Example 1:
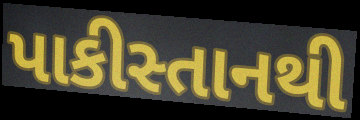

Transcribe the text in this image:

પાકીસ્તાનથી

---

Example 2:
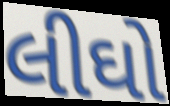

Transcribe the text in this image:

લીઘો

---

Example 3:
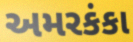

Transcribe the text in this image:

અમરકંકા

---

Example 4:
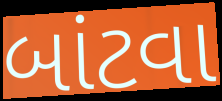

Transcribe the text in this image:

બાંટવા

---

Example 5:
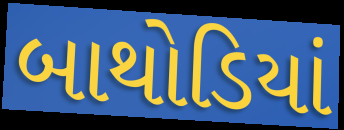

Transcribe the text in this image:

બાથોડિયાં